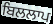
ਬਿਲਲਾਪ